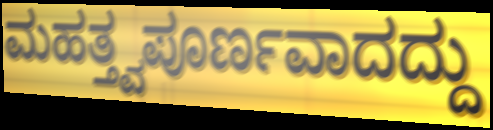
ಮಹತ್ತ್ವಪೂರ್ಣವಾದದ್ದು